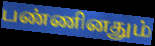
பண்ணினதும்